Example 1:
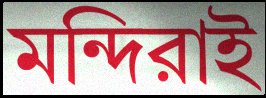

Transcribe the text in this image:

মন্দিরাই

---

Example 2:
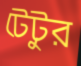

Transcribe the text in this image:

টেটুর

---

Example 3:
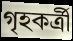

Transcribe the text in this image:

গৃহকর্ত্রী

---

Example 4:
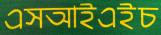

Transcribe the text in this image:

এসআইএইচ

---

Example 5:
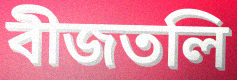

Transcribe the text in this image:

বীজতলি